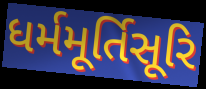
ધર્મમૂર્તિસૂરિ